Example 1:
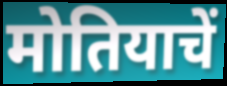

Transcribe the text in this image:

मोतियाचें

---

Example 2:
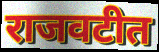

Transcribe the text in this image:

राजवटीत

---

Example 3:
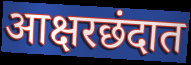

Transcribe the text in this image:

आक्षरछंदात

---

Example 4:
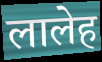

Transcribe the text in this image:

लालेह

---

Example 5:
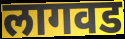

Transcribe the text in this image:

लागवड